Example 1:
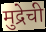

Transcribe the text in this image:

मुद्रेची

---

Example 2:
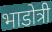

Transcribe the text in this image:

भाडोत्री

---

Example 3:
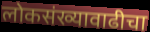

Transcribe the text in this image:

लोकसंख्यावाढीचा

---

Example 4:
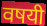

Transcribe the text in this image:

वषयी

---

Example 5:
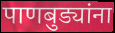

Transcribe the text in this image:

पाणबुड्यांना